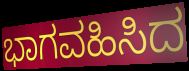
ಭಾಗವಹಿಸಿದ